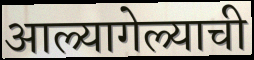
आल्यागेल्याची